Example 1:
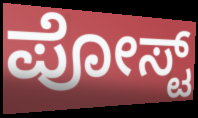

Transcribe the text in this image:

ಪೋಸ್ಟ್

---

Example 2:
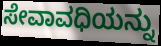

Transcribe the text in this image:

ಸೇವಾವಧಿಯನ್ನು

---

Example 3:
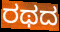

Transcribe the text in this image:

ರಥದ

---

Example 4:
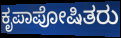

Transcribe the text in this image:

ಕೃಪಾಪೋಷಿತರು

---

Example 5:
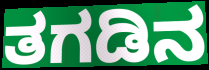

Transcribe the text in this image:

ತಗಡಿನ